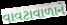
વાવટાવાળાને